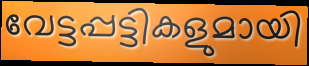
വേട്ടപ്പട്ടികളുമായി